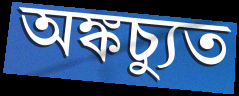
অঙ্কচ্যুত